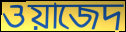
ওয়াজেদ